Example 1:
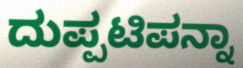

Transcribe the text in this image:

ದುಪ್ಪಟಿಪನ್ನಾ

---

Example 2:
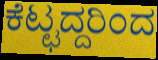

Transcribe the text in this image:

ಕೆಟ್ಟದ್ದರಿಂದ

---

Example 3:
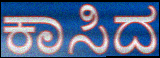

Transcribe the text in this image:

ಕಾಸಿದ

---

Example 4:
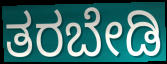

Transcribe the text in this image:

ತರಬೇಡಿ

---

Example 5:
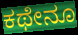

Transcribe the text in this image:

ಕಥೇನೂ